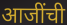
आजींची